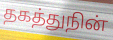
தகத்துநின்